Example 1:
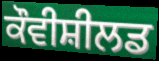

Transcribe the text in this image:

ਕੌਵੀਸ਼ੀਲਡ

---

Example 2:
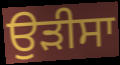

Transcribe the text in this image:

ਉਡ਼ੀਸਾ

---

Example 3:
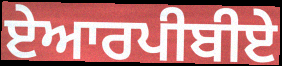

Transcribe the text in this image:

ਏਆਰਪੀਬੀਏ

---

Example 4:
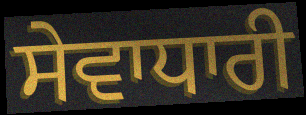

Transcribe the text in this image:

ਸੇਵਾਧਾਰੀ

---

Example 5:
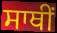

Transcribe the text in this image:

ਸਾਥੀਂ